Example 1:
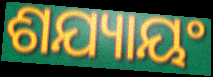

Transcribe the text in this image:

ଶଯ୍ୟାୟଂ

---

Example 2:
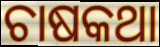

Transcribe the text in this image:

ଚାଷକଥା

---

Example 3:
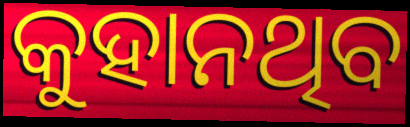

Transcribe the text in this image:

କୁହାନଥିବ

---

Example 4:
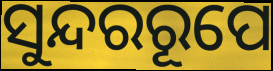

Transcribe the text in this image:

ସୁନ୍ଦରରୂପେ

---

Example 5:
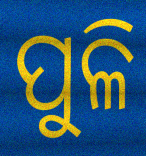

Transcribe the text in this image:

ପୁଳି